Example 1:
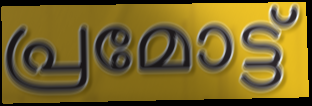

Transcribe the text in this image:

പ്രമോട്ട്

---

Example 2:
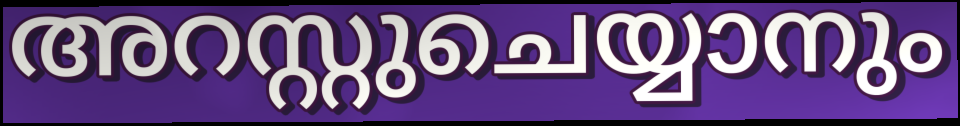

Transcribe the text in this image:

അറസ്റ്റുചെയ്യാനും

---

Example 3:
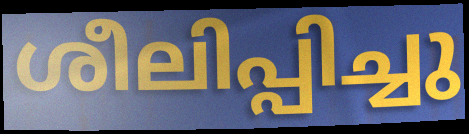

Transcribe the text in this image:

ശീലിപ്പിച്ചു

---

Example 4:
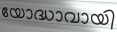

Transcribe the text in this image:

യോദ്ധാവായി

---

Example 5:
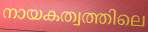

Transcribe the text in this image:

നായകത്വത്തിലെ